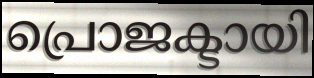
പ്രൊജക്ടായി